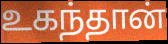
உகந்தான்